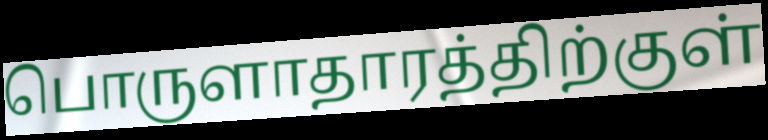
பொருளாதாரத்திற்குள்